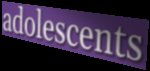
adolescents